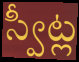
స్వీట్ల